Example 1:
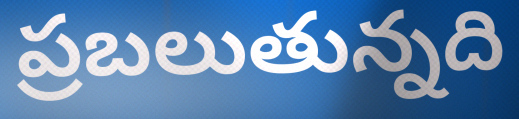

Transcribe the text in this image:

ప్రబలుతున్నది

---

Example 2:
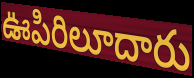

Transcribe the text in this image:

ఊపిరిలూదారు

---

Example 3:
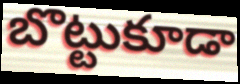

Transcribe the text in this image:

బొట్టుకూడా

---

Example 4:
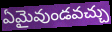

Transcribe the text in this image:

ఏమైవుండవచ్చు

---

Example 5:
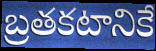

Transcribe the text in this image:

బ్రతకటానికే